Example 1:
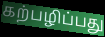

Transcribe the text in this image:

கற்பழிப்பது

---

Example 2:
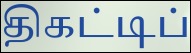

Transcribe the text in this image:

திகட்டிப்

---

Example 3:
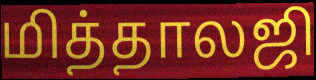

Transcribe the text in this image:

மித்தாலஜி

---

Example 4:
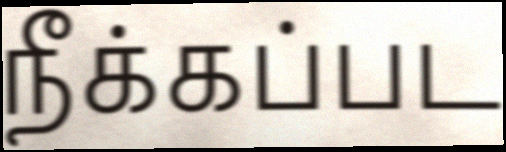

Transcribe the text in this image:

நீக்கப்பட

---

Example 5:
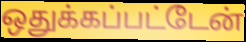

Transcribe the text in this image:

ஒதுக்கப்பட்டேன்